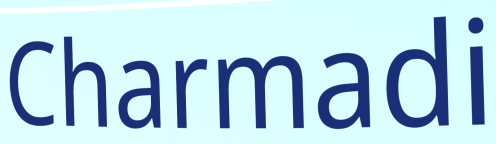
Charmadi